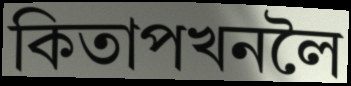
কিতাপখনলৈ